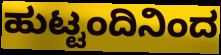
ಹುಟ್ಟಂದಿನಿಂದ